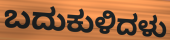
ಬದುಕುಳಿದಳು